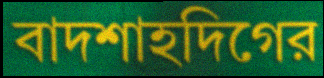
বাদশাহদিগের